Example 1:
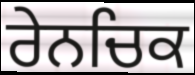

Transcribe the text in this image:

ਰੇਨਚਿਕ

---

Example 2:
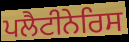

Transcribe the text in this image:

ਪਲੈਟੀਨੇਰਿਸ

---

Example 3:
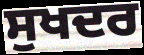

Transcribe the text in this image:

ਸੁਖਦਰ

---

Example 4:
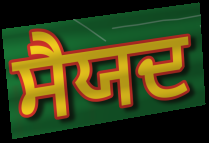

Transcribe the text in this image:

ਸੈਯਦ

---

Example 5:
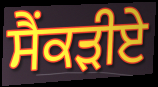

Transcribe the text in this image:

ਸੈਂਕੜੀਏ